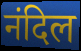
नंदिल